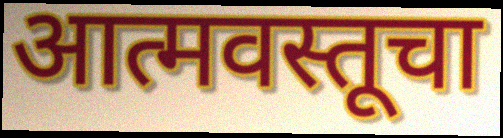
आत्मवस्तूचा